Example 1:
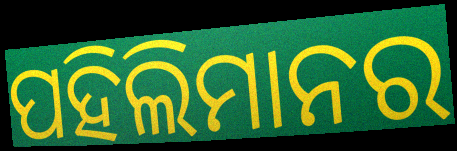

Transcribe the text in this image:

ପହିଲିମାନର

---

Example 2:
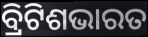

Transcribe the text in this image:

ବ୍ରିଟିଶଭାରତ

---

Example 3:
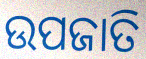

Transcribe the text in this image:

ଉପଜାତି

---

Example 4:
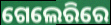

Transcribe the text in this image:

ଗେଲେରିରେ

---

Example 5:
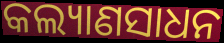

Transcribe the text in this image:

କଲ୍ୟାଣସାଧନ